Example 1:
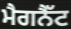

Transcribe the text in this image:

ਮੈਗਨੈੱਟ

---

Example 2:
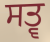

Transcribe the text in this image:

ਸਤ੍ਵ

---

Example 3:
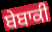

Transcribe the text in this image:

ਬੇਬਾਕੀ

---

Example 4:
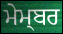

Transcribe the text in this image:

ਮੇਮ੍ਬਰ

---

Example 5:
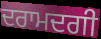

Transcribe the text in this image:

ਦਰਾਮਦਗੀ